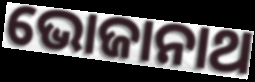
ଭୋଜାନାଥ